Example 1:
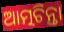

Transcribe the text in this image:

ଆତ୍ମଚିନ୍ତା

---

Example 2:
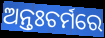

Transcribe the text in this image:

ଅନ୍ତଃଚର୍ମରେ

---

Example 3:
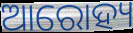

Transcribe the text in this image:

ଆରୋହ୍ୟ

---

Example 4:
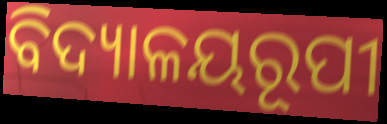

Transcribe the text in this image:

ବିଦ୍ୟାଳୟରୂପୀ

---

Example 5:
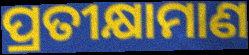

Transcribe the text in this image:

ପ୍ରତୀକ୍ଷାମାଣ